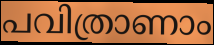
പവിത്രാണാം